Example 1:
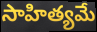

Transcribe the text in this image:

సాహిత్యమే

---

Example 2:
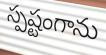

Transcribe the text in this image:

స్పష్టంగాను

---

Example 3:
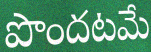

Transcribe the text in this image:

పొందటమే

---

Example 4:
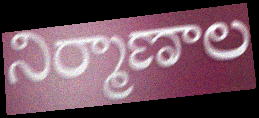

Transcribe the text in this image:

నిర్మాణాల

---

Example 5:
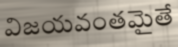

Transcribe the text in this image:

విజయవంతమైతే